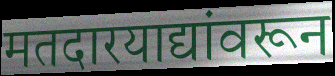
मतदारयाद्यांवरून